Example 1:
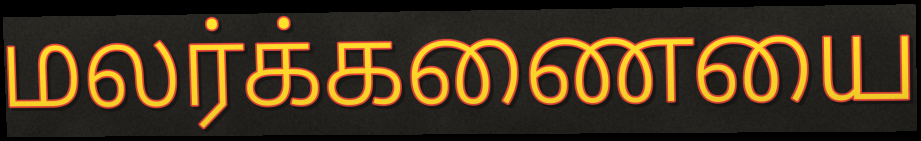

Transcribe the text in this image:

மலர்க்கணையை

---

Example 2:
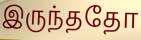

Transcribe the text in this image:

இருந்ததோ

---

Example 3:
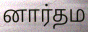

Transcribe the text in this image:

னார்தம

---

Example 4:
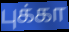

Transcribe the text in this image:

புக்கா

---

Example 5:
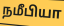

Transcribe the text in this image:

நமீபியா